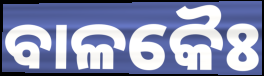
ବାଳକୈଃ